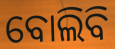
ବୋଲିବି